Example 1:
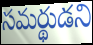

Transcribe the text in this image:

సమర్థుడని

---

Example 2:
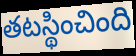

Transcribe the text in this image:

తటస్థించింది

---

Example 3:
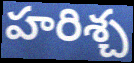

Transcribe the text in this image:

హరిశ్చ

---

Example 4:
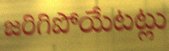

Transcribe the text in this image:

జరిగిపోయేటట్లు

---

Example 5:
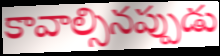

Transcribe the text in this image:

కావాల్సినప్పుడు